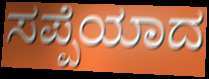
ಸಪ್ಪೆಯಾದ